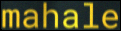
mahale